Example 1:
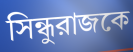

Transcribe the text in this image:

সিন্ধুরাজকে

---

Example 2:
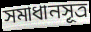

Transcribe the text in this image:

সমাধানসূত্র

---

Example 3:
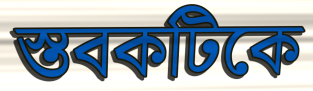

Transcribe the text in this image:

স্তবকটিকে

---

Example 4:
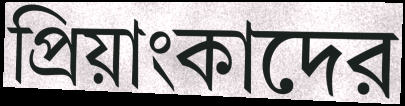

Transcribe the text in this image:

প্রিয়াংকাদের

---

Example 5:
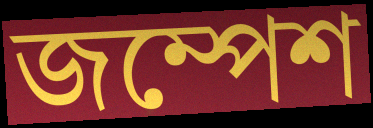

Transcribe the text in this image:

জম্পেশ